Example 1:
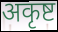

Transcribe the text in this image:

अकृष्ट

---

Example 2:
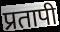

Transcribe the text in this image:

प्रतापी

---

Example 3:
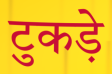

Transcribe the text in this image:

टुकड़े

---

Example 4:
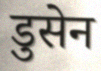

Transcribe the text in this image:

डुसेन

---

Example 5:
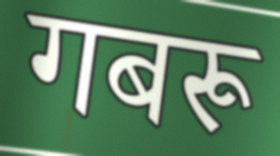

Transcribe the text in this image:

गबरू